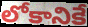
లోకానికే